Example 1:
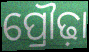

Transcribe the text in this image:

ପ୍ରୌଢ଼ା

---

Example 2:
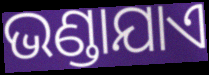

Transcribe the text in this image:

ଭଣ୍ଡାଯାଏ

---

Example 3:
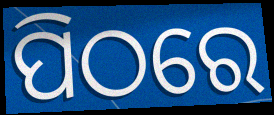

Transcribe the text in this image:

ପିଠରେ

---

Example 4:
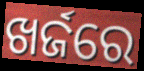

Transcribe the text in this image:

ଖର୍ଜରେ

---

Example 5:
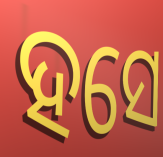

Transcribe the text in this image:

ହସେ